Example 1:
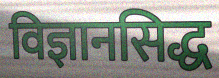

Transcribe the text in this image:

विज्ञानसिद्ध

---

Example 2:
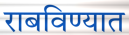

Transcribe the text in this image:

राबविण्‍यात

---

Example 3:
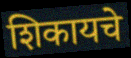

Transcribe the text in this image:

शिकायचे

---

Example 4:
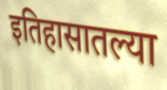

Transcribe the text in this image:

इतिहासातल्या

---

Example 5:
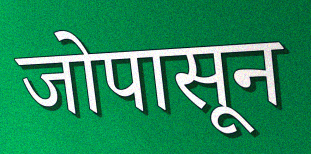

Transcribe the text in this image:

जोपासून